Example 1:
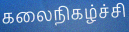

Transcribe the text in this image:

கலைநிகழ்ச்சி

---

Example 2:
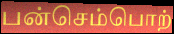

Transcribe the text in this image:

பன்செம்பொற்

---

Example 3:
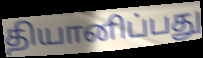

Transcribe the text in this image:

தியானிப்பது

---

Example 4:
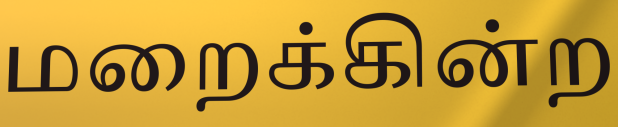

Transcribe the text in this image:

மறைக்கின்ற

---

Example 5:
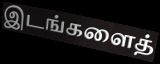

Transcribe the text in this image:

இடங்களைத்